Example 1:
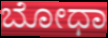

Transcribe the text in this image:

ಬೋಧಾ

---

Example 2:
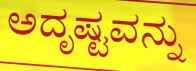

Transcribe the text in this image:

ಅದೃಷ್ಟವನ್ನು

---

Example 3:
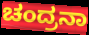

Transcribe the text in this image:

ಚಂದ್ರನಾ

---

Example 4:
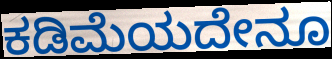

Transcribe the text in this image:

ಕಡಿಮೆಯದೇನೂ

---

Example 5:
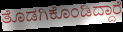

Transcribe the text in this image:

ತೊಡಗಿಕೊಂಡಿದ್ದಾರೆ